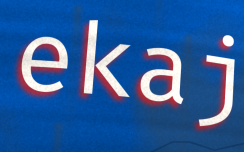
ekaj